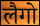
लैगो